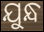
ଯୁନ୍ଧ